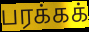
பரக்கக்